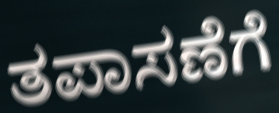
ತಪಾಸಣೆಗೆ